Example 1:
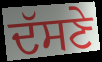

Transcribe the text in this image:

ਦੱਸਣੇ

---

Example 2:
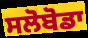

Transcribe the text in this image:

ਸਲੋਬੋਡਾ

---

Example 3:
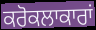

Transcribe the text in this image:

ਕਰੋਕਲਾਕਾਰਾਂ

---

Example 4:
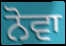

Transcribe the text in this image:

ਨੋਵਾ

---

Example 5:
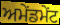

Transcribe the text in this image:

ਅਮੇਂਡਮੇਂਟ